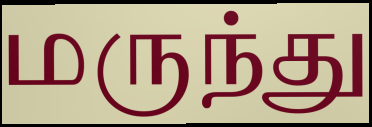
மருந்து